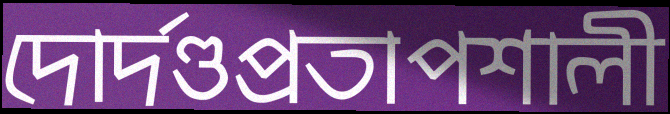
দোর্দণ্ডপ্রতাপশালী